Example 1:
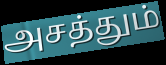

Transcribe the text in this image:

அசத்தும்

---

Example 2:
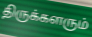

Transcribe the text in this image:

திருக்களரும்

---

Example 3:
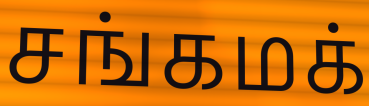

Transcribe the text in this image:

சங்கமக்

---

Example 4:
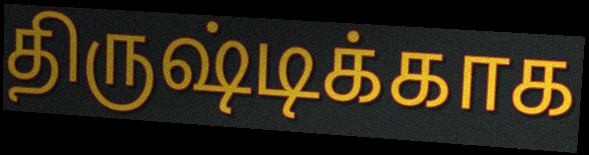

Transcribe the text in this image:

திருஷ்டிக்காக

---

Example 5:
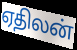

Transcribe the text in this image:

ஏதிலன்